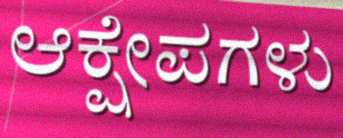
ಆಕ್ಷೇಪಗಳು